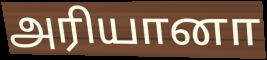
அரியானா